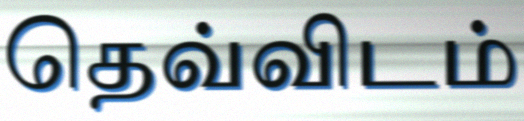
தெவ்விடம்